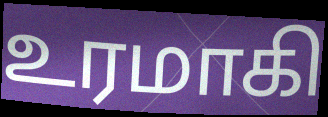
உரமாகி